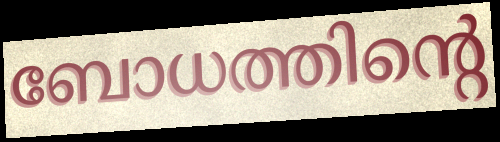
ബോധത്തിന്റെ